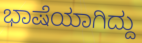
ಭಾಷೆಯಾಗಿದ್ದು